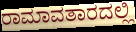
ರಾಮಾವತಾರದಲ್ಲಿ